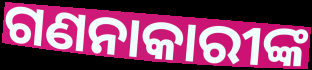
ଗଣନାକାରୀଙ୍କ